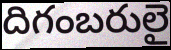
దిగంబరులై